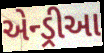
એન્ડ્રીઆ